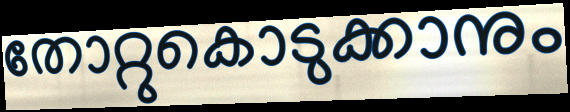
തോറ്റുകൊടുക്കാനും